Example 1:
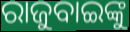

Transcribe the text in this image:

ରାଜୁବାଇଙ୍କୁ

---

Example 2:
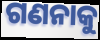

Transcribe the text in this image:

ଗଣନାକୁ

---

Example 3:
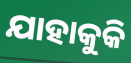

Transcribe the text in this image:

ଯାହାକୁକି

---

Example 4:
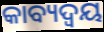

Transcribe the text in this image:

କାବ୍ୟଦ୍ୱୟ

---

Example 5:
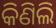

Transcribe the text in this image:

କିଣିଲି